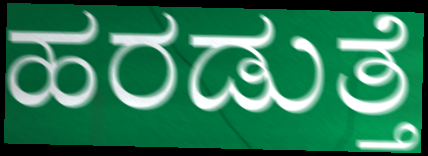
ಹರಡುತ್ತೆ